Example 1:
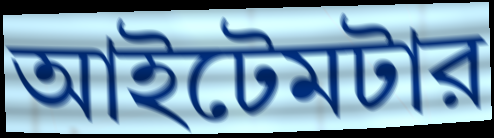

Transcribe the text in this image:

আইটেমটার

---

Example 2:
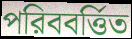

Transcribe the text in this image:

পরিববর্ত্তিত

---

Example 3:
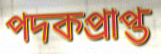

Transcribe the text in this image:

পদকপ্রাপ্ত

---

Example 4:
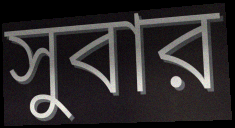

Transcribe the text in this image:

সুবার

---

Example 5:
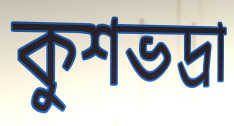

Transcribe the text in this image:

কুশভদ্রা